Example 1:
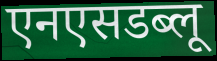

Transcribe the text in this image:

एनएसडब्लू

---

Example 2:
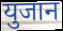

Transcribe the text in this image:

युजान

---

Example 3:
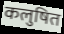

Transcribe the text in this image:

कलुषित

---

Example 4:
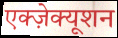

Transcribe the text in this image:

एक्ज़ेक्यूशन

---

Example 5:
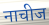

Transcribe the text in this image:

नाचीज